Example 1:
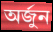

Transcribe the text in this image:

অৰ্জুন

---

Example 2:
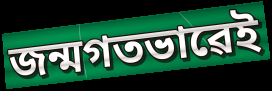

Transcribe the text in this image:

জন্মগতভাৱেই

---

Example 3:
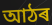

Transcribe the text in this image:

আঠৰ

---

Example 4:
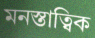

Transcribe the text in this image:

মনস্তাত্বিক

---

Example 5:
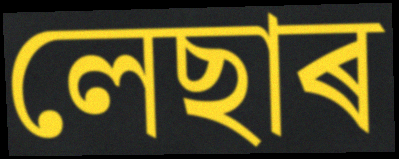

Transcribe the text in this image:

লেছাৰ